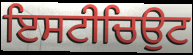
ਇਸਟੀਚਿਉਟ